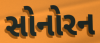
સોનોરન